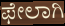
ಫೇಲಾಗಿ